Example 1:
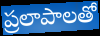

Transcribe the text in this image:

ప్రలాపాలతో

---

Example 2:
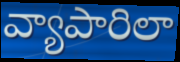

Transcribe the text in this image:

వ్యాపారిలా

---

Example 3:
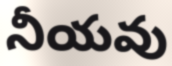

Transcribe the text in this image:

నీయవు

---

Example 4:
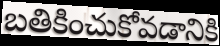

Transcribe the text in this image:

బతికించుకోవడానికి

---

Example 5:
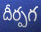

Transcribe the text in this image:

దీర్పగ